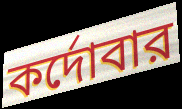
কর্দোবার